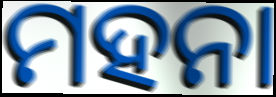
ମହନା